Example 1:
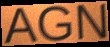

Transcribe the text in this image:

AGN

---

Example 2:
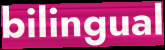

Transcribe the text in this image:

bilingual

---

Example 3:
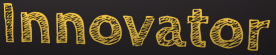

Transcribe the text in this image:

Innovator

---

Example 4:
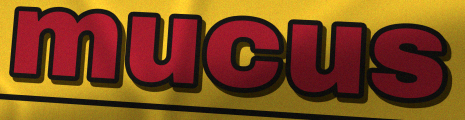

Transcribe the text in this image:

mucus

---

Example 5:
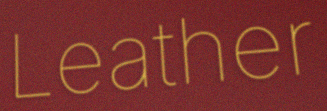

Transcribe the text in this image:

Leather